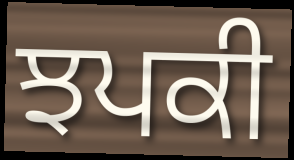
ਝਪਕੀ